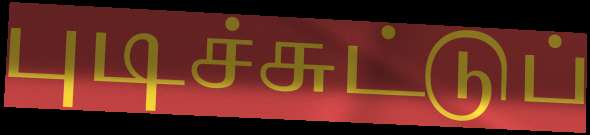
புடிச்சுட்டுப்